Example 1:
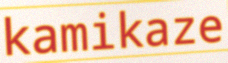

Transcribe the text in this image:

kamikaze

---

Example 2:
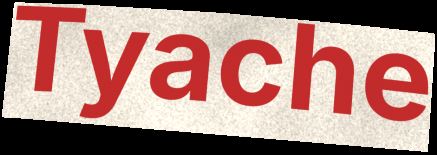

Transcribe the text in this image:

Tyache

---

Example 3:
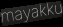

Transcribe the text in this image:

mayakku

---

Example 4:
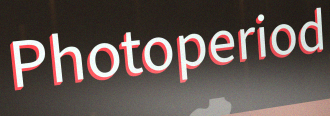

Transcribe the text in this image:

Photoperiod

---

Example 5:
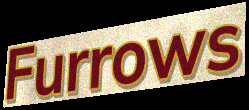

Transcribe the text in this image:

Furrows